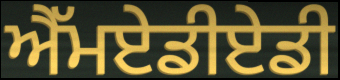
ਐੱਮਏਡੀਏਡੀ